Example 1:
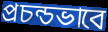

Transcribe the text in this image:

প্রচন্ডভাবে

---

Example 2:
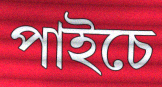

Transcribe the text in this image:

পাইচে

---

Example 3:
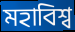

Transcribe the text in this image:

মহাবিশ্ব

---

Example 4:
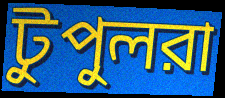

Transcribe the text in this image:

টুপুলরা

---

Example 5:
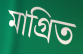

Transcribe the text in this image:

মাগ্রিত